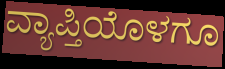
ವ್ಯಾಪ್ತಿಯೊಳಗೂ